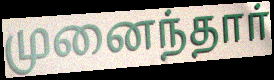
முனைந்தார்